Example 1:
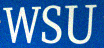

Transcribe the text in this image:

WSU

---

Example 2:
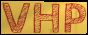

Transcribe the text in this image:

VHP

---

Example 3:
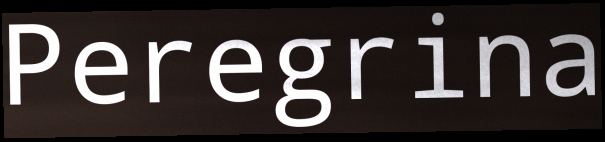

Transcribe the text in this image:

Peregrina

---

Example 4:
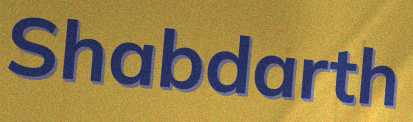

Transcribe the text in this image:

Shabdarth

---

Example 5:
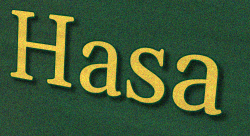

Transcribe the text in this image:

Hasa